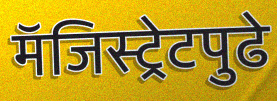
मॅजिस्ट्रेटपुढे